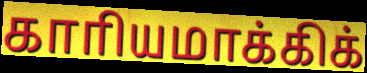
காரியமாக்கிக்